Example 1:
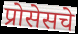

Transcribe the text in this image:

प्रोसेसचे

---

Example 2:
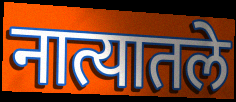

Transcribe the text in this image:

नात्यातले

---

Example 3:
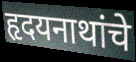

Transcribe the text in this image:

हृदयनाथांचे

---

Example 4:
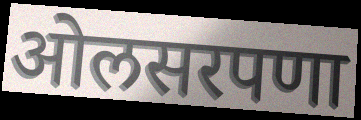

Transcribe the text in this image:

ओलसरपणा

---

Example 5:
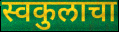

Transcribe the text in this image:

स्वकुलाचा